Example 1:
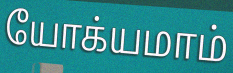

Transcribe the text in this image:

யோக்யமாம்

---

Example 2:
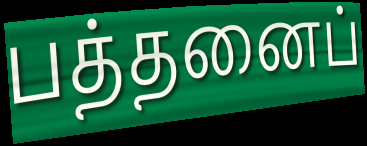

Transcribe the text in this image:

பத்தனைப்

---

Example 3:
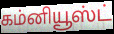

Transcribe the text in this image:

கம்னியூஸ்ட்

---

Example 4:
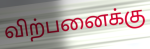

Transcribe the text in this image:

விற்பனைக்கு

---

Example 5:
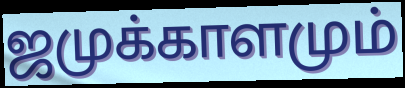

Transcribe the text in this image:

ஜமுக்காளமும்